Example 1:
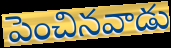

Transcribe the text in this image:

పెంచినవాడు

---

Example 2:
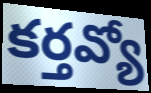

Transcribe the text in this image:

కర్తవ్యో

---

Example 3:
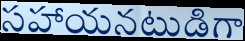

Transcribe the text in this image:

సహాయనటుడిగా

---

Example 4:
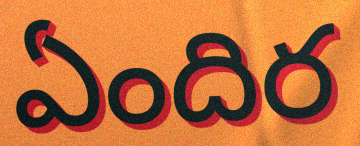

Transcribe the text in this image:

ఏందిర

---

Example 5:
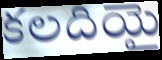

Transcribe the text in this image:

కలదియై